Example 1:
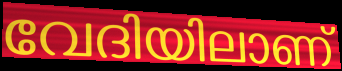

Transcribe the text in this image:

വേദിയിലാണ്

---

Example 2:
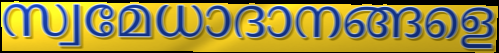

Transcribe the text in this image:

സ്വമേധാദാനങ്ങളെ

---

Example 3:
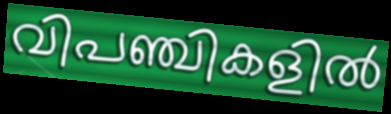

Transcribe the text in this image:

വിപഞ്ചികളിൽ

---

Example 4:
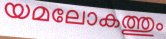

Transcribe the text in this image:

യമലോകത്തും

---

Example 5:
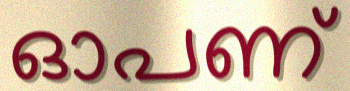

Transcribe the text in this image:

ഓപണ്